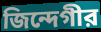
জিন্দেগীর